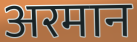
अरमान